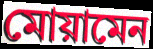
মোয়ামেন